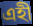
এহী